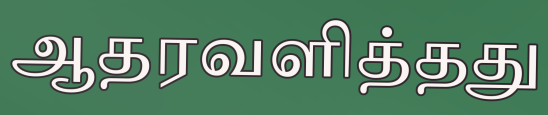
ஆதரவளித்தது